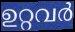
ഉറ്റവർ